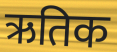
ऋतिक